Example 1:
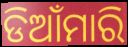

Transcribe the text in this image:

ଡିଆଁମାରି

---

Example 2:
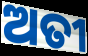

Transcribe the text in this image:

ଅତୀ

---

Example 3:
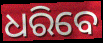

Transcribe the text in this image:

ଧରିବେ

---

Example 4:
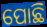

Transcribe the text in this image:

ପୋଛି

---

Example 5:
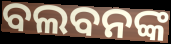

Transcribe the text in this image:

ବଲବନଙ୍କ